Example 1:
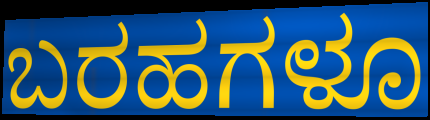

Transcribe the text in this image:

ಬರಹಗಳೂ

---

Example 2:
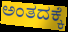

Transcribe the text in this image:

ಅಂತದಕ್ಕೆ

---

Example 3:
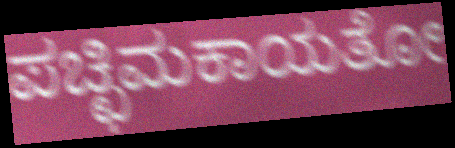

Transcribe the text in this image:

ಪಚ್ಛಿಮಕಾಯತೋ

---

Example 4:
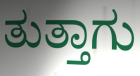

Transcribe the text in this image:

ತುತ್ತಾಗು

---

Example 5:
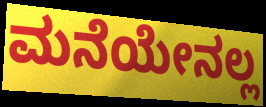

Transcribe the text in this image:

ಮನೆಯೇನಲ್ಲ